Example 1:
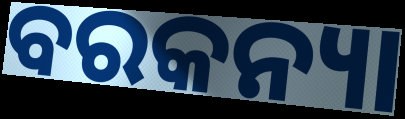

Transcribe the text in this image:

ବରକନ୍ୟା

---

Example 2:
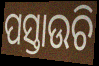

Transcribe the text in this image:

ପସ୍ତାଉଚି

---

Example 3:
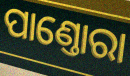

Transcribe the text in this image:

ପାଣ୍ତୋରା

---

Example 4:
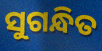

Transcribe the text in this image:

ସୁଗନ୍ଧିତ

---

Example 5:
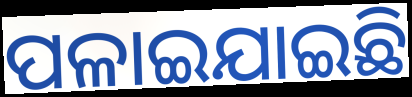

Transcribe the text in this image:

ପଳାଇଯାଇଛି